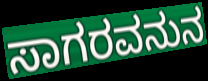
ಸಾಗರವನುನ